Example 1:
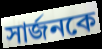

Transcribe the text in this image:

সার্জনকে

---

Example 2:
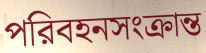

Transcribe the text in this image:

পরিবহনসংক্রান্ত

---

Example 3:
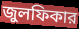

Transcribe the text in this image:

জুলফিকার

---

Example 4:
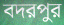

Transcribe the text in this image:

বদরপুর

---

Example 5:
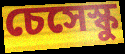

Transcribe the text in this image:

চেসেস্কু